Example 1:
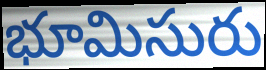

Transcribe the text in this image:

భూమిసురు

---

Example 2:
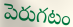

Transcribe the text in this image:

పెరుగటం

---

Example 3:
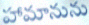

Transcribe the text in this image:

హామానును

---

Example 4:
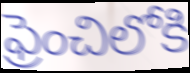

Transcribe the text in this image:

ఫ్రెంచిలోకి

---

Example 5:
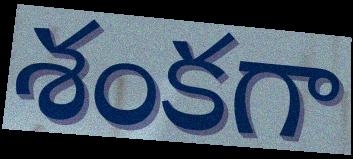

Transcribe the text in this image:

శంకగా